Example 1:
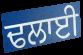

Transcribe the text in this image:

ਢਲਾਈ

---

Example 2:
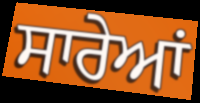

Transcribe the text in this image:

ਸਾਰੇਆਂ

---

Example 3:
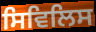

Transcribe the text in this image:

ਸਿਵਿਲਿਸ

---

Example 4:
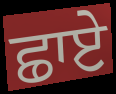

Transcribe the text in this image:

ਛਾਏ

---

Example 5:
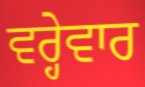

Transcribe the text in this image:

ਵਰ੍ਹੇਵਾਰ